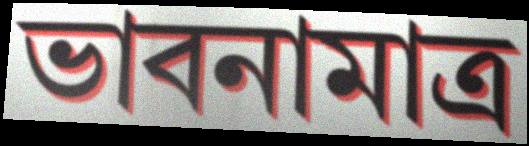
ভাবনামাত্র